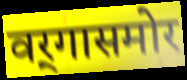
वर्गासमोर